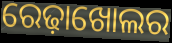
ରେଢ଼ାଖୋଲର